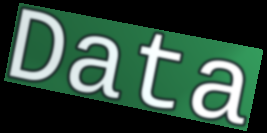
Data